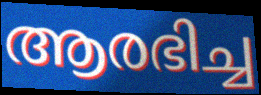
ആരഭിച്ച